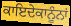
ਕਾਇਦੇਕਾਨੂੰਨਾਂ